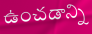
ఉంచడాన్ని